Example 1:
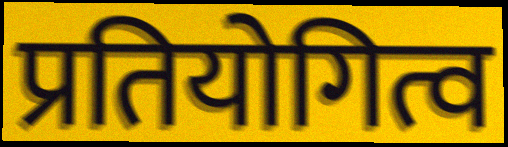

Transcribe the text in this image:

प्रतियोगित्व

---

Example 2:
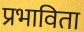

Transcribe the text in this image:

प्रभाविता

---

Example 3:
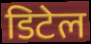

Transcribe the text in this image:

डिटेल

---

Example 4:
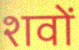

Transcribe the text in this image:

शवों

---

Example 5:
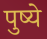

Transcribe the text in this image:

पुष्ये